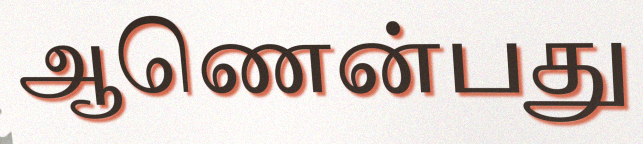
ஆணென்பது